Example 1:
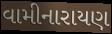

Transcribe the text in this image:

વામીનારાયણ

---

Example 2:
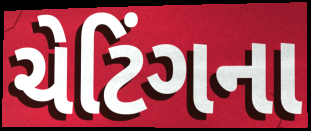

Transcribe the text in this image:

ચેટિંગના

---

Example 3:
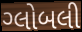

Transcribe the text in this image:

ગ્લોબલી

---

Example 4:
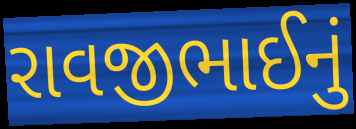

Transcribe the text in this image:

રાવજીભાઈનું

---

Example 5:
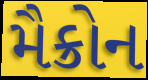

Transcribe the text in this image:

મૈક્રોન